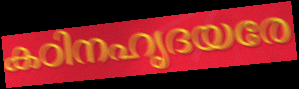
കഠിനഹൃദയരേ